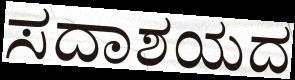
ಸದಾಶಯದ